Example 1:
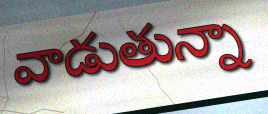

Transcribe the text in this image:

వాడుతున్నా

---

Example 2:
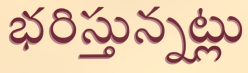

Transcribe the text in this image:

భరిస్తున్నట్లు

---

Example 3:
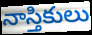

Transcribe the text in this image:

నాస్తికులు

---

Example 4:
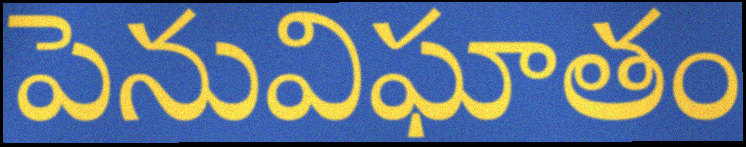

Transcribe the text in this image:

పెనువిఘాతం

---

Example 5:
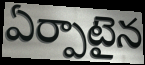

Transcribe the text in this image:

ఏర్పాటైన